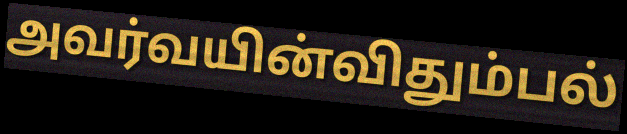
அவர்வயின்விதும்பல்